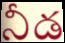
నీడ